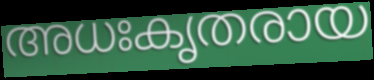
അധഃകൃതരായ